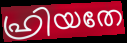
ഹ്രിയതേ